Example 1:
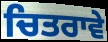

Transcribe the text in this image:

ਚਿਤਰਾਵੇ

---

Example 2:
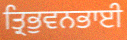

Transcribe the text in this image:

ਤ੍ਰਿਭੁਵਨਭਾਈ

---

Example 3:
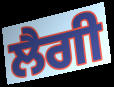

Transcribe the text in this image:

ਲੈਗੀ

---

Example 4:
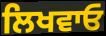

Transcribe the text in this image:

ਲਿਖਵਾਓ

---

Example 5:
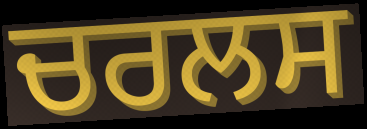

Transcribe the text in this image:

ਚਰਲਸ